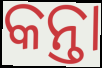
କନ୍ତା